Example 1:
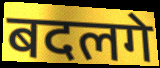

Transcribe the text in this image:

बदलगे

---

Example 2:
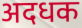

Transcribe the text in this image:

अदधक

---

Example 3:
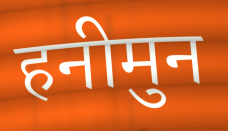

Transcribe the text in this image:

हनीमुन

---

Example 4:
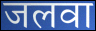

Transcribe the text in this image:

जलवा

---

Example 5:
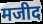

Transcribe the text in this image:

मजीद